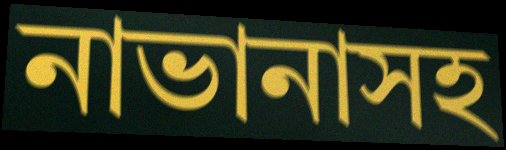
নাভানাসহ